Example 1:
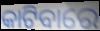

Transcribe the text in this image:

କାଟିବାରେ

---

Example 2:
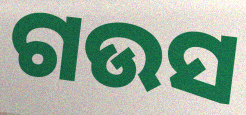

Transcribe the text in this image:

ଗଉସ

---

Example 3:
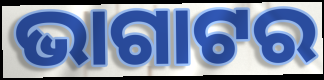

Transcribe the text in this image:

ଭାଗାଟର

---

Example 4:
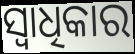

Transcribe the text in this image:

ସ୍ବାଧିକାର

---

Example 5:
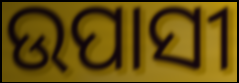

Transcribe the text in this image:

ଉପାସୀ